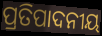
ପ୍ରତିପାଦନୀୟ